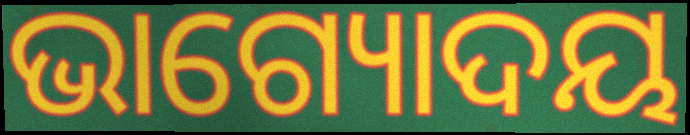
ଭାଗ୍ୟୋଦୟ